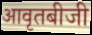
आवृतबीजी